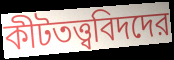
কীটতত্ত্ববিদদের